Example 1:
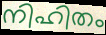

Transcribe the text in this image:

നിഹിതം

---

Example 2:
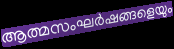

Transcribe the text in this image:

ആത്മസംഘർഷങ്ങളെയും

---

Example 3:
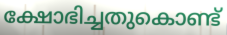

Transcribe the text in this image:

ക്ഷോഭിച്ചതുകൊണ്ട്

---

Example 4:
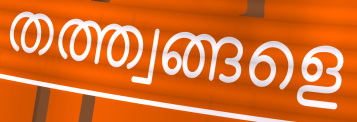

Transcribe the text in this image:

തത്ത്വങ്ങളെ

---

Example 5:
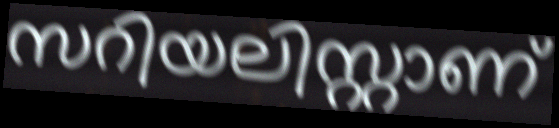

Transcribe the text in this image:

സറിയലിസ്റ്റാണ്